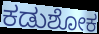
ಕಡುಶೋಕ